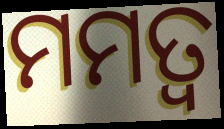
ମମତ୍ୱ